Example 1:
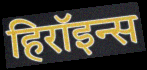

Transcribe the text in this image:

हिरॉइन्स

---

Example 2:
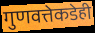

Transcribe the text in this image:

गुणवत्तेकडेही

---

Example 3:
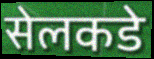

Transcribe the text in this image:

सेलकडे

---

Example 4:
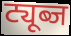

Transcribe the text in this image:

ट्यूब्ज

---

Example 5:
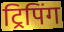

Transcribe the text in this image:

ट्रिपिंग